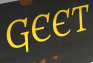
GEET